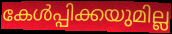
കേൾപ്പിക്കയുമില്ല